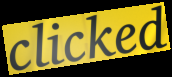
clicked